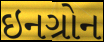
ઇનગ્રોન